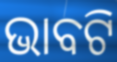
ଭାବଟି